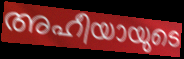
അഹീയായുടെ